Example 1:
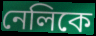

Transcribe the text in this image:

নেলিকে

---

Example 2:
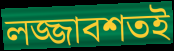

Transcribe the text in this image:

লজ্জাবশতই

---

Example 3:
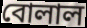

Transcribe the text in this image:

বোলাল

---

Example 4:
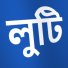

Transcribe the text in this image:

লুটি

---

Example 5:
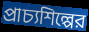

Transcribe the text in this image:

প্রাচ্যশিল্পের